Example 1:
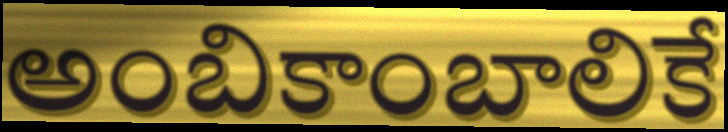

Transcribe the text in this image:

అంబికాంబాలికే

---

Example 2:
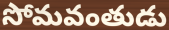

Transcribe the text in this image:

సోమవంతుడు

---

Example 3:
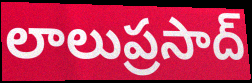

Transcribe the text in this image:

లాలుప్రసాద్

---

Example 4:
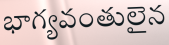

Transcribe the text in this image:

భాగ్యవంతులైన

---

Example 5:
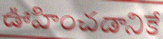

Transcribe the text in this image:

ఊహించడానికే